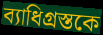
ব্যাধিগ্রস্তকে